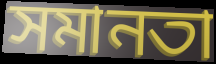
সমানতা